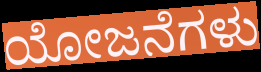
ಯೋಜನೆಗಳು